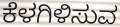
ಕೆಳಗಿಳಿಸುವ